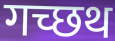
गच्छथ